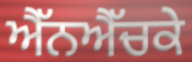
ਐੱਨਐੱਚਕੇ